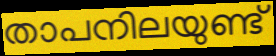
താപനിലയുണ്ട്